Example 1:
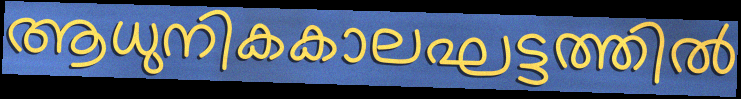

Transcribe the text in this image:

ആധുനികകാലഘട്ടത്തിൽ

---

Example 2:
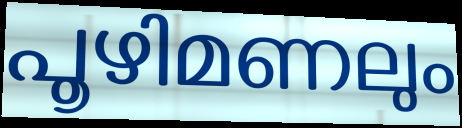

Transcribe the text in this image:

പൂഴിമണലും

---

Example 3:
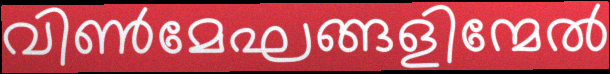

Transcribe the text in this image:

വിൺമേഘങ്ങളിന്മേൽ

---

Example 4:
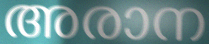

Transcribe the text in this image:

അരാന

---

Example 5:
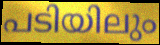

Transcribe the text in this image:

പടിയിലും